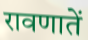
रावणातें